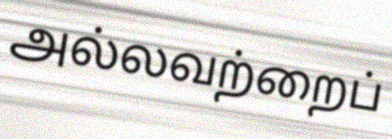
அல்லவற்றைப்